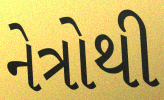
નેત્રોથી